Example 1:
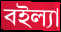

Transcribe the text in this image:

বইল্যা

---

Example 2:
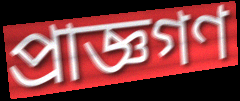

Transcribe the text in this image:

প্রাজ্ঞগণ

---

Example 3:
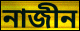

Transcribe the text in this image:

নাজীন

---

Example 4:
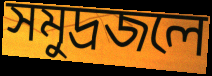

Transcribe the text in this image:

সমুদ্রজলে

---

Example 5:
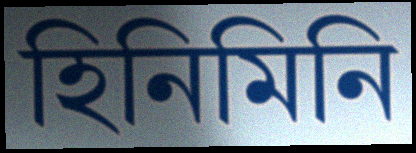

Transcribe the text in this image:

হিনিমিনি